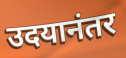
उदयानंतर